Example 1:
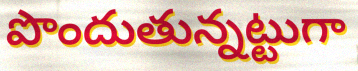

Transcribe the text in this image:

పొందుతున్నట్టుగా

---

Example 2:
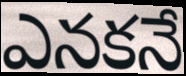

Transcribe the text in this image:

ఎనకనే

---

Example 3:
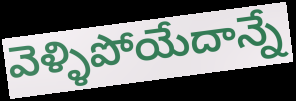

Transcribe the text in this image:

వెళ్ళిపోయేదాన్నే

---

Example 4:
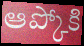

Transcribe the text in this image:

ఆప్కోకి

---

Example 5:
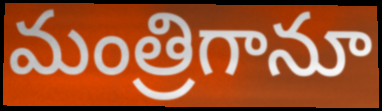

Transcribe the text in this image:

మంత్రిగానూ